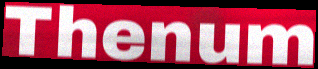
Thenum